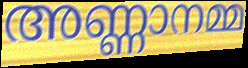
അണ്ണാനമ്മ